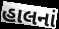
હાલનાં